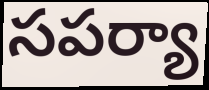
సపర్యా